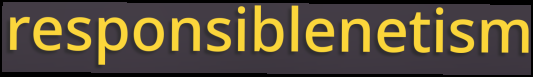
responsiblenetism